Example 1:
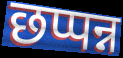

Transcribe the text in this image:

छप्पन्न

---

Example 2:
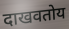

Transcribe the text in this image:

दाखवतोय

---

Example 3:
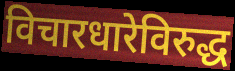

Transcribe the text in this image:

विचारधारेविरुद्ध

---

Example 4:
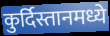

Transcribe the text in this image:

कुर्दिस्तानमध्ये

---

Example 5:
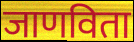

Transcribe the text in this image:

जाणविता